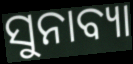
ସୁନାବ୍ୟା